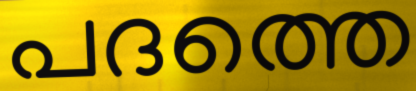
പദത്തെ